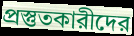
প্রস্তুতকারীদের